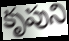
కృపుని